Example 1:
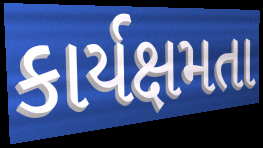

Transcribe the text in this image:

કાર્યક્ષમતા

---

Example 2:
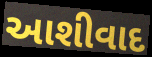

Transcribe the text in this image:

આશીવાદ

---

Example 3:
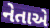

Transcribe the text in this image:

નેતાએ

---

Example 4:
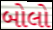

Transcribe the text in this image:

બોલો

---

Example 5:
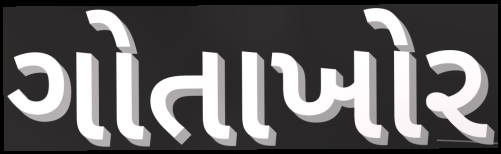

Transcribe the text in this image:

ગોતાખોર